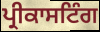
ਪ੍ਰੀਕਾਸਟਿੰਗ